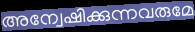
അന്വേഷിക്കുന്നവരുമേ